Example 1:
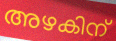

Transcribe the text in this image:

അഴകിന്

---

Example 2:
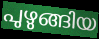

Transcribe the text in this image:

പുഴുങ്ങിയ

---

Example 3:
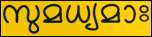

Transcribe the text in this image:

സുമധ്യമാഃ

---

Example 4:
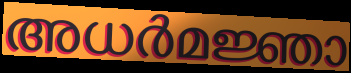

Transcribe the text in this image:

അധർമജ്ഞാ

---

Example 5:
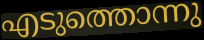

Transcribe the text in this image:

എടുത്തൊന്നു